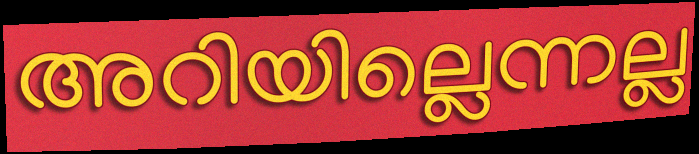
അറിയില്ലെന്നല്ല